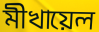
মীখায়েল